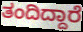
ತಂದಿದ್ದಾರೆ